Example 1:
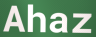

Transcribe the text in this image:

Ahaz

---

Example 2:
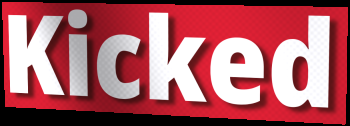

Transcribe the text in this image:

Kicked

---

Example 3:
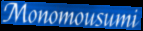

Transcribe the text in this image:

Monomousumi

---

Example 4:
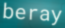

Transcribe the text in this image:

beray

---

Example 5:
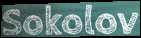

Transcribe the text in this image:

Sokolov